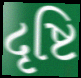
દૃષ્ટિ